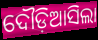
ଦୌଡ଼ିଆସିଲା